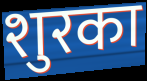
शुरका